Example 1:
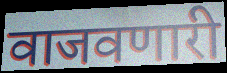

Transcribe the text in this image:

वाजवणारी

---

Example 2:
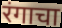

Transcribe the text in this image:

रंगाचा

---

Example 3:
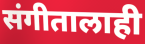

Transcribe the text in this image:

संगीतालाही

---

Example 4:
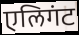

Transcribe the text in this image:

एलिगंट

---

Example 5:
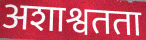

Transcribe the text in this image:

अशाश्वतता